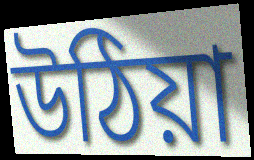
উঠিয়া